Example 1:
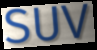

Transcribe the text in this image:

SUV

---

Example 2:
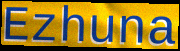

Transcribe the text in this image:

Ezhuna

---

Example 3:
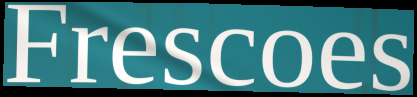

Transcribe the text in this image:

Frescoes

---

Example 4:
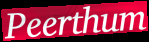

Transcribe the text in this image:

Peerthum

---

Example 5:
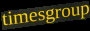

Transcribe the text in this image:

timesgroup